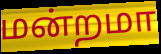
மன்றமா